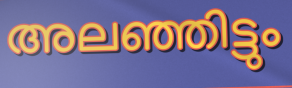
അലഞ്ഞിട്ടും